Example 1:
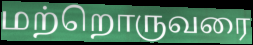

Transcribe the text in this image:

மற்றொருவரை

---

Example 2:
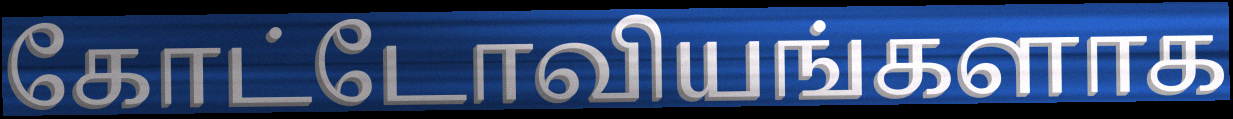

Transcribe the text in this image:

கோட்டோவியங்களாக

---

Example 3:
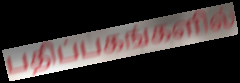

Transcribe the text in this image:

பதிப்பகங்களில்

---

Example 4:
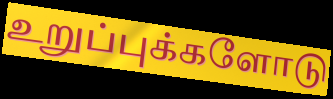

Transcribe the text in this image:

உறுப்புக்களோடு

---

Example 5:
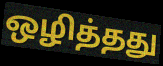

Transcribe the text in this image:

ஒழித்தது